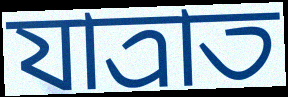
যাত্ৰাত